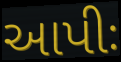
આપીઃ